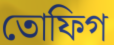
তোফিগ